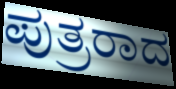
ಪುತ್ರರಾದ